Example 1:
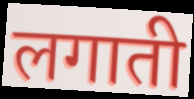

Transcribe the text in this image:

लगाती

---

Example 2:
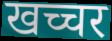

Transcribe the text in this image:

खच्चर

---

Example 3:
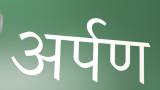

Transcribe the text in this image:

अर्पण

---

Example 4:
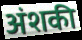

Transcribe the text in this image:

अंशकी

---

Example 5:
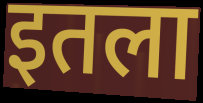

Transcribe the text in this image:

इतला